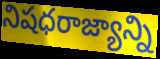
నిషధరాజ్యాన్ని